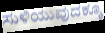
ಸುಳಿಯುವುದಕ್ಕೂ